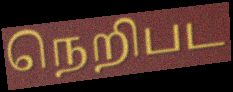
நெறிபட